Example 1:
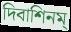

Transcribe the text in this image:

দিবাশিনম্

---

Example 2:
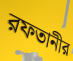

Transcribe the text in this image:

রফতানীর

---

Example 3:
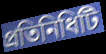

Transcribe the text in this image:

প্রতিনিধিটি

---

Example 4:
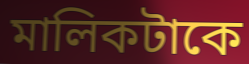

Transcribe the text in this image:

মালিকটাকে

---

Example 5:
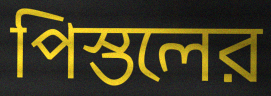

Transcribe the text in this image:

পিস্তলের